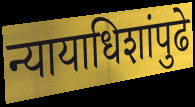
न्यायाधिशांपुढे